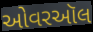
ઓવરઑલ